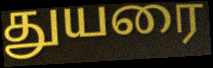
துயரை